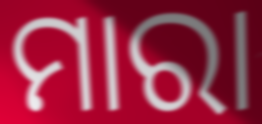
ମାରା